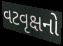
વટવૃક્ષનો